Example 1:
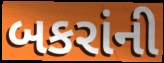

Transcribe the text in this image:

બકરાંની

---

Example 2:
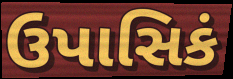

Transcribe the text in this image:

ઉપાસિકં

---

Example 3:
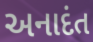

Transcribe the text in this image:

અનાદંત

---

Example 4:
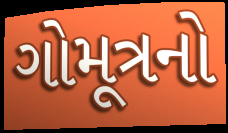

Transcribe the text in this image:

ગોમૂત્રનો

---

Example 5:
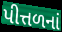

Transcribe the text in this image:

પીત્તળનાં